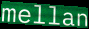
mellan